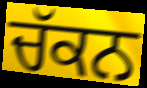
ਚੱਕਨ